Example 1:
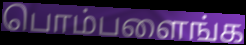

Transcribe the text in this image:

பொம்பளைங்க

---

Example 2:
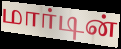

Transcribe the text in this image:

மார்டின்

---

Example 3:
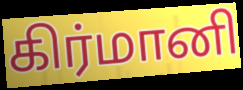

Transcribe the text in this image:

கிர்மானி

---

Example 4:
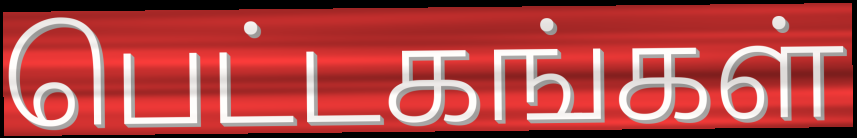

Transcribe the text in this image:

பெட்டகங்கள்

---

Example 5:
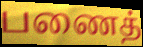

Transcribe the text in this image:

பணைத்